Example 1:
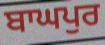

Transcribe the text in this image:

ਬਾਘਪੁਰ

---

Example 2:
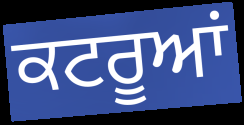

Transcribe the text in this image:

ਕਟਰੂਆਂ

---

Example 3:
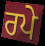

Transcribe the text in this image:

ਰਪੇ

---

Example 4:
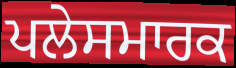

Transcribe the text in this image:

ਪਲੇਸਮਾਰਕ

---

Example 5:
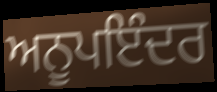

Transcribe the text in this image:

ਅਨੂਪਇੰਦਰ